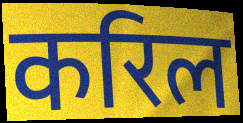
करिल